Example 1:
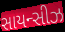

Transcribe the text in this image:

સાયન્સીઝ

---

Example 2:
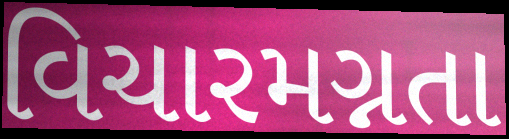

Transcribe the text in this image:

વિચારમગ્નતા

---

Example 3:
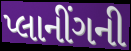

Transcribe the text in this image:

પ્લાનીંગની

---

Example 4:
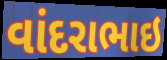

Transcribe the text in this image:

વાંદરાભાઇ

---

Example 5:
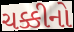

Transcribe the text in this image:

ચક્કીનો